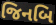
જિનબિ